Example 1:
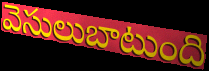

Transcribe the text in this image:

వెసులుబాటుంది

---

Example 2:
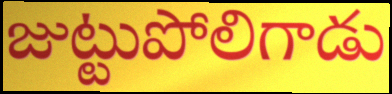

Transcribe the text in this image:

జుట్టుపోలిగాడు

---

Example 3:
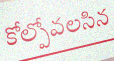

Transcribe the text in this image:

కోల్పోవలసిన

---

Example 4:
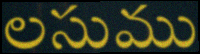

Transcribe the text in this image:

లసుము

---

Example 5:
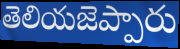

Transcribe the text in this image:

తెలియజెప్పారు